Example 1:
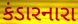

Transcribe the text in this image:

કંડારનારા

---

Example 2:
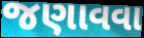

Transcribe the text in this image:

જણાવવા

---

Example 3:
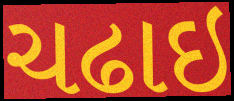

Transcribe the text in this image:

ચઢાઇ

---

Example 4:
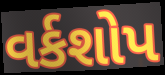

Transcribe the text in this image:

વર્કશોપ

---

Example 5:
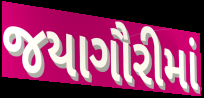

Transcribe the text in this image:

જયાગૌરીમાં